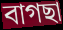
বাগছা